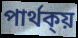
পাৰ্থক্য়